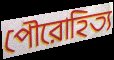
পৌরোহিত্য